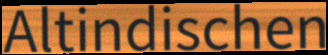
Altindischen